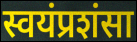
स्वयंप्रशंसा